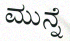
ಮುನ್ನೆ